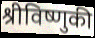
श्रीविष्णुकी